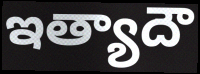
ఇత్యాదౌ